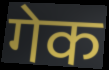
गेक